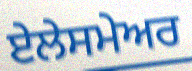
ਏਲੇਸਮੇਅਰ